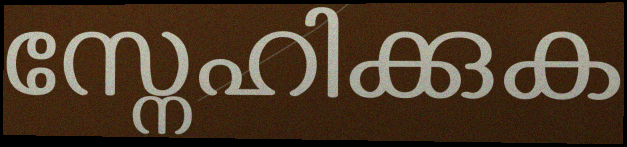
സ്നേഹിക്കുക